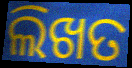
ଲିଖତ